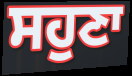
ਸਹੁਣਾ